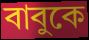
বাবুকে